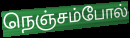
நெஞ்சம்போல்